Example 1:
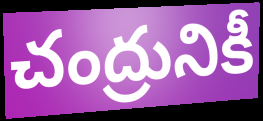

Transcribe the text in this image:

చంద్రునికీ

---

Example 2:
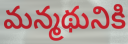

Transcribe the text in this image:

మన్మథునికి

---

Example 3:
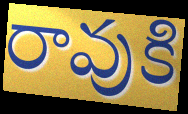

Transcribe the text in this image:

రావుకి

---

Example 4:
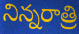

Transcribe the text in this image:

నిన్నరాత్రి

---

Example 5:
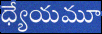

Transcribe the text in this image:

ధ్యేయమూ